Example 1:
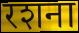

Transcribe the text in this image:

रशना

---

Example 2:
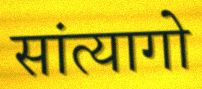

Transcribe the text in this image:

सांत्यागो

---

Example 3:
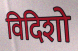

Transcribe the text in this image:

विदिशो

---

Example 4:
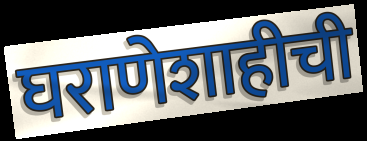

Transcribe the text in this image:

घराणेशाहीची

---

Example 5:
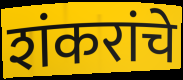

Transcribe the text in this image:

शंकरांचे